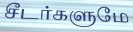
சீடர்களுமே